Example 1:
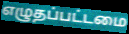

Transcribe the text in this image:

எழுதப்பட்டமை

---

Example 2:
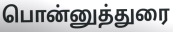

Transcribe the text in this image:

பொன்னுத்துரை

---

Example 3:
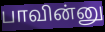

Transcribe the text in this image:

பாவின்னு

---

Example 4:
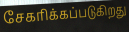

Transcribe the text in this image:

சேகரிக்கப்படுகிறது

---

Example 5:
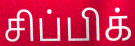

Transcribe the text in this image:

சிப்பிக்